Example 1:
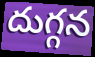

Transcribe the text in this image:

దుగ్గన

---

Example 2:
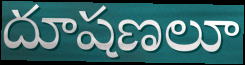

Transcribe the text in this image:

దూషణలూ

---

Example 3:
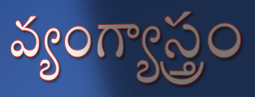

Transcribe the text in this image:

వ్యంగ్యాస్త్రం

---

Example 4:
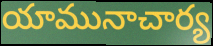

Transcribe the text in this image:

యామునాచార్య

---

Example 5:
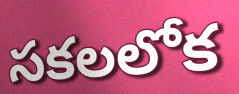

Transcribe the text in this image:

సకలలోక